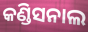
କଣ୍ଡିସନାଲ